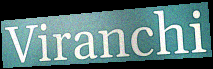
Viranchi